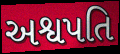
અશ્વપતિ